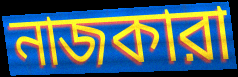
নাজকারা